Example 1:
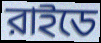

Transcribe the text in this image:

রাইডে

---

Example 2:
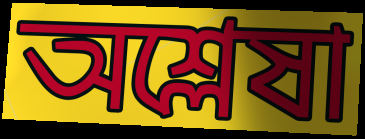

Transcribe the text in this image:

অশ্লেষা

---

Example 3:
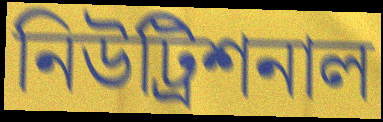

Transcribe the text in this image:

নিউট্রিশনাল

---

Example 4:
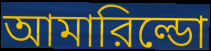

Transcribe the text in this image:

আমারিল্ডো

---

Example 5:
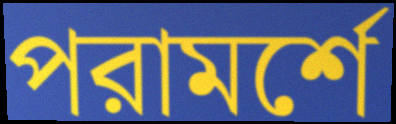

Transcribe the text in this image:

পরামর্শে